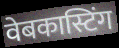
वेबकास्टिंग